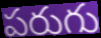
పరుగు